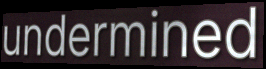
undermined